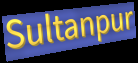
Sultanpur